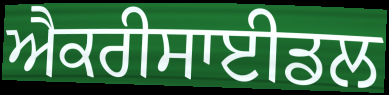
ਐਕਰੀਸਾਈਡਲ